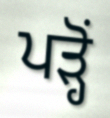
ਪੜ੍ਹੋਂ